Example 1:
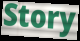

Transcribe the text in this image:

Story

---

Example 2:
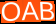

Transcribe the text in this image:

OAB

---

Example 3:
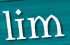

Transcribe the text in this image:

lim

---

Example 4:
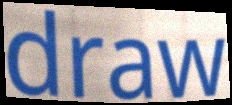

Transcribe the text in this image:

draw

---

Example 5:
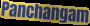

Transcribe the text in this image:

Panchangam